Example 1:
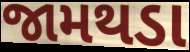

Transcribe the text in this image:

જામથડા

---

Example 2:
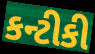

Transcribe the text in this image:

કન્ટીકી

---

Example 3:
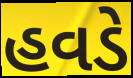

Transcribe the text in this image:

હવડે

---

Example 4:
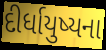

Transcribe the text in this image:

દીર્ધાયુષ્યના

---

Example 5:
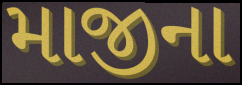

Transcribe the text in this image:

માજીના